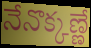
నేనొక్కణ్ణే